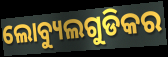
ଲୋବ୍ୟୁଲଗୁଡିକର